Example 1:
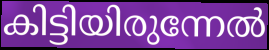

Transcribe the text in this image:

കിട്ടിയിരുന്നേൽ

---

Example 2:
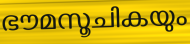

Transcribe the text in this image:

ഭൗമസൂചികയും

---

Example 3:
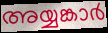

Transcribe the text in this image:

അയ്യങ്കാർ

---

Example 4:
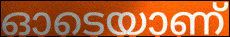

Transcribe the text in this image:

ഓടെയാണ്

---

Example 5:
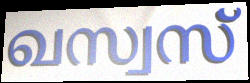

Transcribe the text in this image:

ഖസ്വസ്